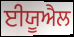
ਈਯੂਐਲ